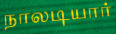
நாலடியார்